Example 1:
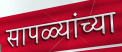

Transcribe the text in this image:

सापळ्यांच्या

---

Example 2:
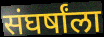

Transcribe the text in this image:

संघर्षांला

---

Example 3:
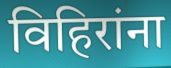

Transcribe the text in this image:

विहिरांना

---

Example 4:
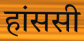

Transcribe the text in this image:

हांससी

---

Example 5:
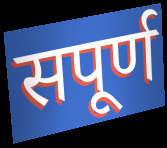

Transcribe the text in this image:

सपूर्ण